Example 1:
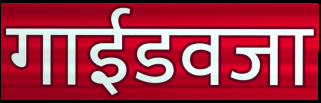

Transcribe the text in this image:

गाईडवजा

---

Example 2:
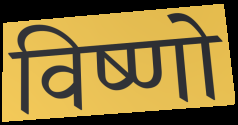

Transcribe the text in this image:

विष्णो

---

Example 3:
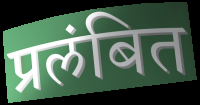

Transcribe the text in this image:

प्रलंबित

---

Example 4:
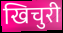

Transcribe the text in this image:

खिचुरी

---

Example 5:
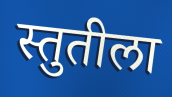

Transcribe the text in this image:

स्तुतीला